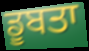
ਡੂਬਤਾ